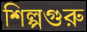
শিল্পগুরু